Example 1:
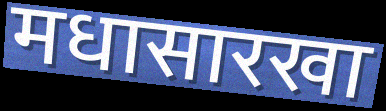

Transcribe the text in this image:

मधासारखा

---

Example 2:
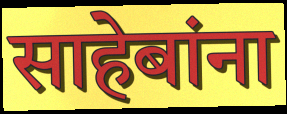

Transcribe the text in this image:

साहेबांना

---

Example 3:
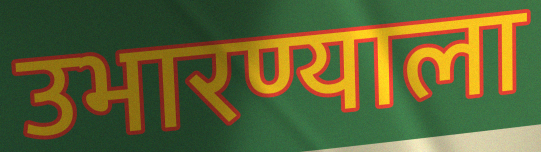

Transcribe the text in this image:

उभारण्याला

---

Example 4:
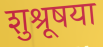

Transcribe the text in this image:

शुश्रूषया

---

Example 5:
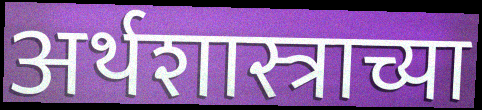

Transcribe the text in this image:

अर्थशास्त्राच्या